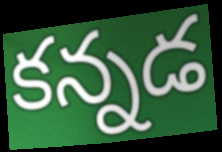
కన్నడ